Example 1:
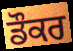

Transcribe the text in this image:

ਡੌਕਰ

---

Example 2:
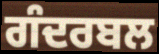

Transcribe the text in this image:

ਗੰਦਰਬਲ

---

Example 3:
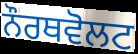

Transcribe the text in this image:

ਨੌਰਥਵੋਲਟ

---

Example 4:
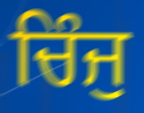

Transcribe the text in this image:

ਚਿੰਜੁ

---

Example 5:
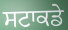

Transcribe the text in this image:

ਸਟਾਕਡੇ